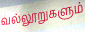
வல்லூறுகளும்